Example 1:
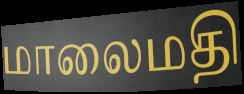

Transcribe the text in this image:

மாலைமதி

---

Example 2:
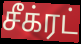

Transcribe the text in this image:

சீக்ரட்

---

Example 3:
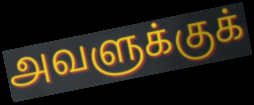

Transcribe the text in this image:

அவளுக்குக்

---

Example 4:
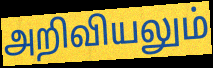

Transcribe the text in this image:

அறிவியலும்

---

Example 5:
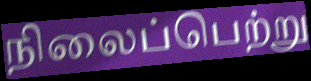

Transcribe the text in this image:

நிலைப்பெற்று